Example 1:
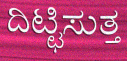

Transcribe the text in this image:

ದಿಟ್ಟಿಸುತ್ತ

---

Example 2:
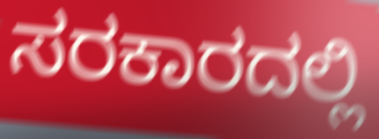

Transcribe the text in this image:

ಸರಕಾರದಲ್ಲಿ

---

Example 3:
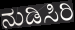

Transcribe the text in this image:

ನುಡಿಸಿರಿ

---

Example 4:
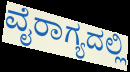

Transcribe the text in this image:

ವೈರಾಗ್ಯದಲ್ಲಿ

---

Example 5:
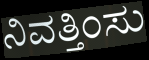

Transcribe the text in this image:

ನಿವತ್ತಿಂಸು